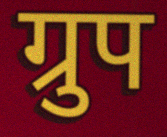
ग्रुप